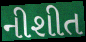
નીશીત